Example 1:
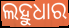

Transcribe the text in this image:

ଲହୁଧାର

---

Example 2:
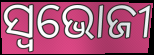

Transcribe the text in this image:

ସ୍ବଭୋଜୀ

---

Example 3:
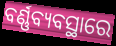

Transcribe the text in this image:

ବର୍ଣ୍ଣବ୍ୟବସ୍ଥାରେ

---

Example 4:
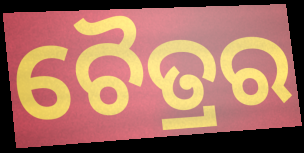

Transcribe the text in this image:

ଚୈତ୍ରର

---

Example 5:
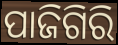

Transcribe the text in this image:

ପାଜିଗିରି